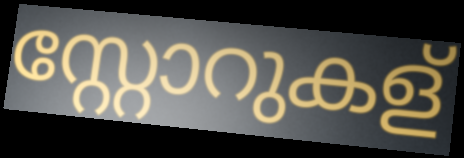
സ്റ്റോറുകള്